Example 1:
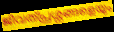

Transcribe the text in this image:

ജീവത്പ്രശ്നങ്ങളെയും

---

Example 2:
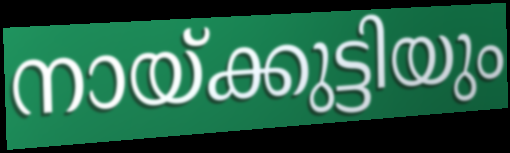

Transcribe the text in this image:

നായ്ക്കുട്ടിയും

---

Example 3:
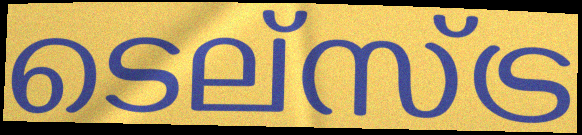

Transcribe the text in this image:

ടെല്സ്ട്ര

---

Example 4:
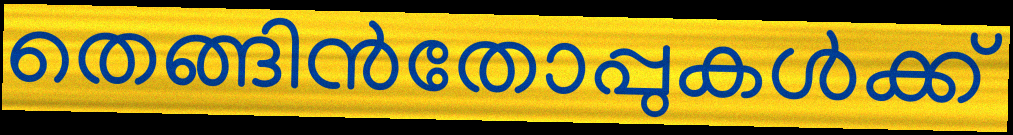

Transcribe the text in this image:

തെങ്ങിൻതോപ്പുകൾക്ക്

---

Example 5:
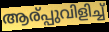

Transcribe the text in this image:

ആര്പ്പുവിളിച്ച്